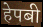
हेपबी